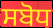
ਸਬੋਧ